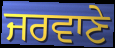
ਜਰਵਾਣੇ